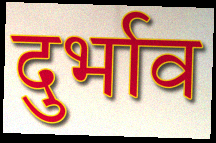
दुर्भाव